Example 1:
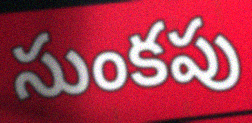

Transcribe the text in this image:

సుంకపు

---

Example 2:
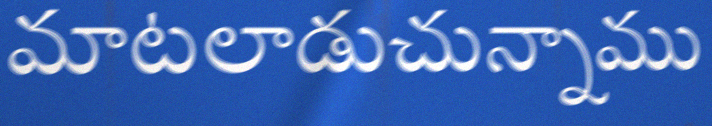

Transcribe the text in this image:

మాటలాడుచున్నాము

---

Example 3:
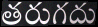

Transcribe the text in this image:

తరుగదు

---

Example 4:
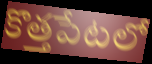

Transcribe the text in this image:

కొత్తపేటలో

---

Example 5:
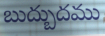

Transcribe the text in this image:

బుద్బుదము